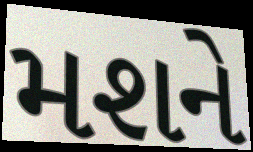
મશને